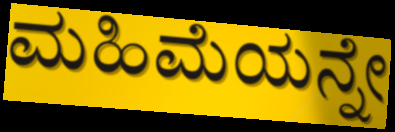
ಮಹಿಮೆಯನ್ನೇ